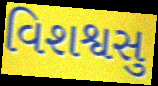
વિશશ્વસુ